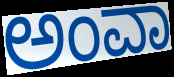
ಅಂವಾ